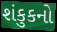
શંકુકનો